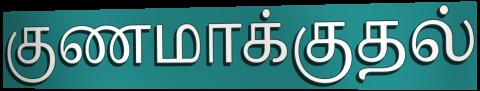
குணமாக்குதல்